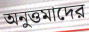
অনুত্তমাদের